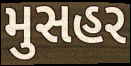
મુસહર